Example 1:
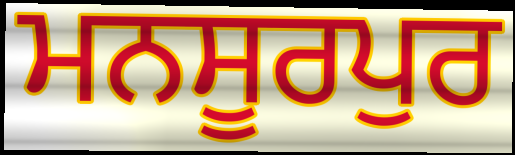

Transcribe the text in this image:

ਮਨਸੂਰਪੁਰ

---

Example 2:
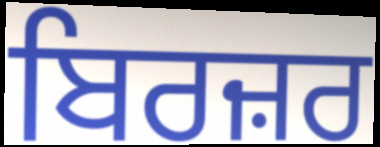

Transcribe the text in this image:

ਬਿਰਜ਼ਰ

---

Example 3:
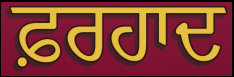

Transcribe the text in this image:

ਫ਼ਰਹਾਦ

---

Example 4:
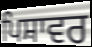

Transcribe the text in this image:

ਪਿਸ਼ਾਵਰ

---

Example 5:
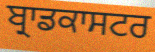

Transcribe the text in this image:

ਬ੍ਰਾਡਕਾਸਟਰ